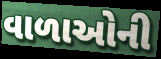
વાળાઓની